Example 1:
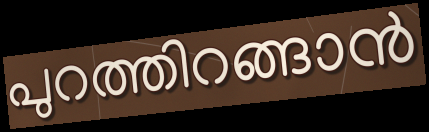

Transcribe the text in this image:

പുറത്തിറങ്ങാൻ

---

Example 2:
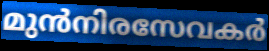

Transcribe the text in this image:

മുൻനിരസേവകർ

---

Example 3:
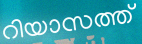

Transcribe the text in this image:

റിയാസത്ത്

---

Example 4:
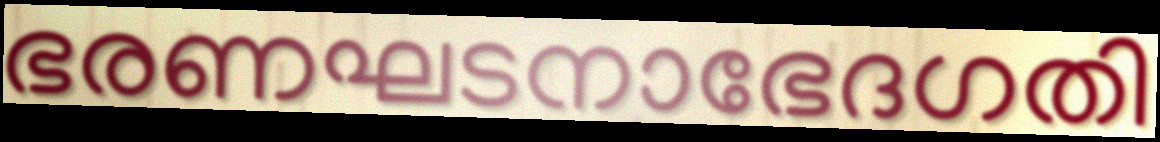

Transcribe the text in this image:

ഭരണഘടനാഭേദഗതി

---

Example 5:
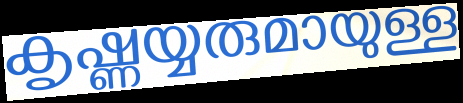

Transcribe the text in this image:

കൃഷ്ണയ്യരുമായുള്ള